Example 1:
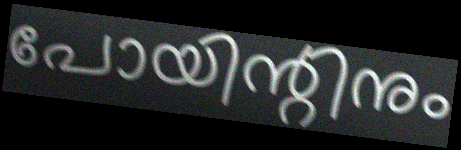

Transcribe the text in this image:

പോയിന്റിനും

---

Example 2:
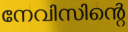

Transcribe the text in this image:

നേവിസിന്റെ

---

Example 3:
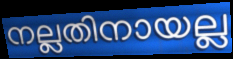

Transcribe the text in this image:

നല്ലതിനായല്ല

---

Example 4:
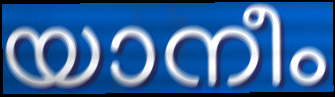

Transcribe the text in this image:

യാനീം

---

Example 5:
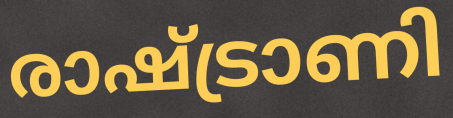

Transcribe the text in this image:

രാഷ്ട്രാണി